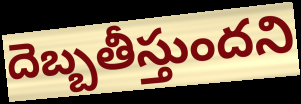
దెబ్బతీస్తుందని